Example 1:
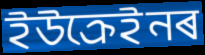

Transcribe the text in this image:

ইউক্ৰেইনৰ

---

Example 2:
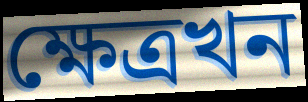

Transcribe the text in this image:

ক্ষেত্ৰখন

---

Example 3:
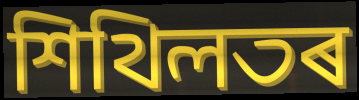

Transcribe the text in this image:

শিথিলতৰ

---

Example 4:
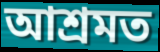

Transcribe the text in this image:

আশ্ৰমত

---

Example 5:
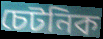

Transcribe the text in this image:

চেটনিক